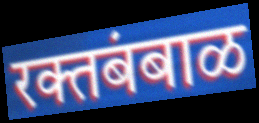
रक्तबंबाळ